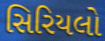
સિરિયલો